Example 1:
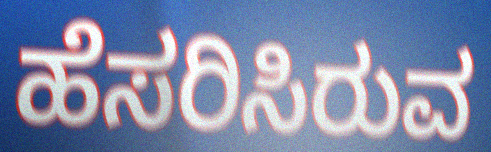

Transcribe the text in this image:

ಹೆಸರಿಸಿರುವ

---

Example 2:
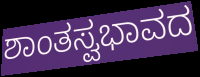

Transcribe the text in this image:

ಶಾಂತಸ್ವಭಾವದ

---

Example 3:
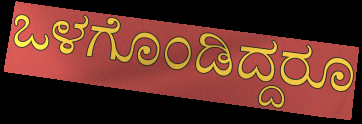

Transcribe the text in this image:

ಒಳಗೊಂಡಿದ್ದರೂ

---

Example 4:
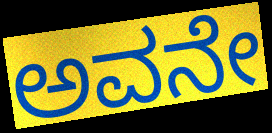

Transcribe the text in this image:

ಅವನೇ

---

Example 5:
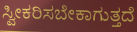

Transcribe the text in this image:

ಸ್ವೀಕರಿಸಬೇಕಾಗುತ್ತದೆ